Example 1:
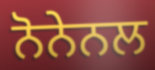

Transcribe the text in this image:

ਨੋਨੇਨਲ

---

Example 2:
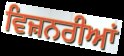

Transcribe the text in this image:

ਵਿਜ਼ਨਰੀਆਂ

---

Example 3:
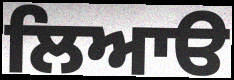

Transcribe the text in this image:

ਲਿਆੳ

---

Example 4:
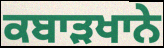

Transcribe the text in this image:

ਕਬਾੜਖਾਨੇ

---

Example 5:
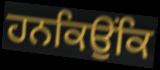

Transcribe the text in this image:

ਹਨਕਿਉਂਕਿ